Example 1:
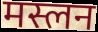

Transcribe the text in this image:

मस्लन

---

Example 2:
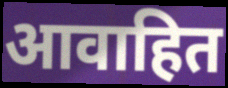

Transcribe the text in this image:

आवाहित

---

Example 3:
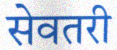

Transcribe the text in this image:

सेवतरी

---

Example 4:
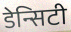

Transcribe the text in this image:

डेन्सिटी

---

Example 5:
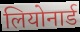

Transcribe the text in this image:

लियोनार्ड